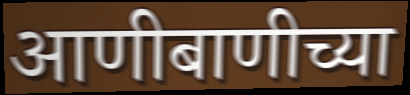
आणीबाणीच्या